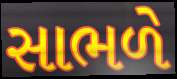
સાભળે